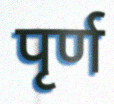
पृर्ण